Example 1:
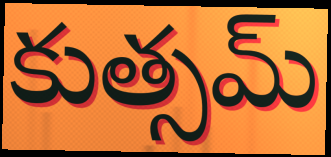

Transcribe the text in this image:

కుత్సమ్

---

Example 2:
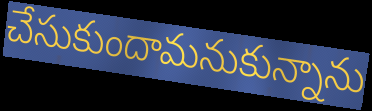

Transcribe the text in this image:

చేసుకుందామనుకున్నాను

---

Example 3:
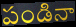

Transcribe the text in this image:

పండినా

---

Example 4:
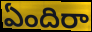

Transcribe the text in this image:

ఏందిరా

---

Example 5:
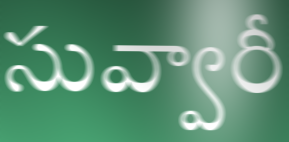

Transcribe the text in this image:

సువ్వారీ